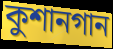
কুশানগান